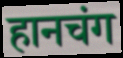
हानचंग